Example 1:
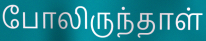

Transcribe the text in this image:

போலிருந்தாள்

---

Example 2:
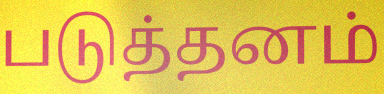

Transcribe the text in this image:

படுத்தனம்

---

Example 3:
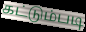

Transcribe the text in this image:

கட்டும்படி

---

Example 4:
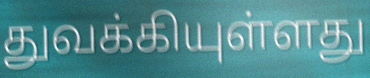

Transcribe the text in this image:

துவக்கியுள்ளது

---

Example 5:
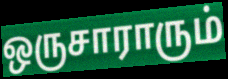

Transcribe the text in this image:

ஒருசாராரும்